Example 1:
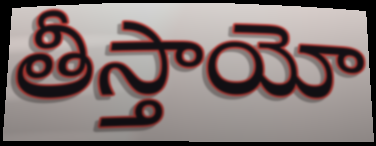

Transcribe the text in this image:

తీస్తాయో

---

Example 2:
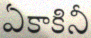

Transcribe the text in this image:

ఏకాకినీ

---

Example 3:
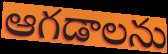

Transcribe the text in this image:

ఆగడాలను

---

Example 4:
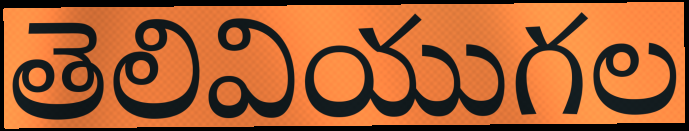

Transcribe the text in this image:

తెలివియుగల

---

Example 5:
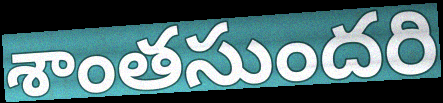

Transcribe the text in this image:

శాంతసుందరి